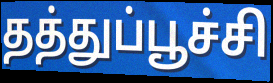
தத்துப்பூச்சி